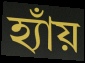
হ্যাঁয়